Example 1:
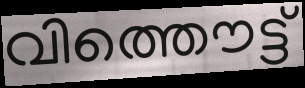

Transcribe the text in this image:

വിത്തൌട്ട്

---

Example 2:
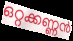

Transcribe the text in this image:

ഒറ്റക്കണ്ണൻ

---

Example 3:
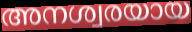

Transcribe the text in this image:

അനശ്വരയായ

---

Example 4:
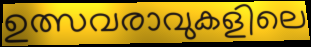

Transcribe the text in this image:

ഉത്സവരാവുകളിലെ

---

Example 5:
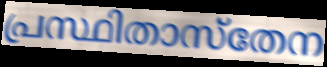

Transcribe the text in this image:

പ്രസ്ഥിതാസ്തേന